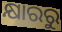
କ୍ଷାରରୁ